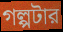
গল্পটার